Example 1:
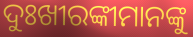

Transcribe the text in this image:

ଦୁଃଖୀରଙ୍କୀମାନଙ୍କୁ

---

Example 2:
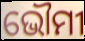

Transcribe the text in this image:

ଭୌମୀ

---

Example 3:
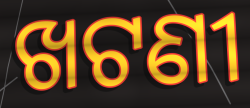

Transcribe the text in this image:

ଖଟଣୀ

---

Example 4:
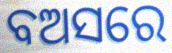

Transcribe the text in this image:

ବଅସରେ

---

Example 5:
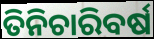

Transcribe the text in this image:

ତିନିଚାରିବର୍ଷ